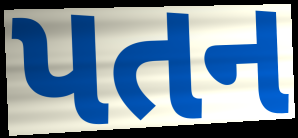
પતન